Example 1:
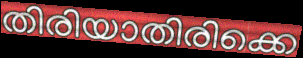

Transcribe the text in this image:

തിരിയാതിരിക്കെ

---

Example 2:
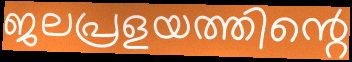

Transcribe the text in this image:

ജലപ്രളയത്തിന്റെ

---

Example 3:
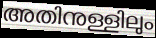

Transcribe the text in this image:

അതിനുള്ളിലും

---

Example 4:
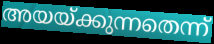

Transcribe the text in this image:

അയയ്ക്കുന്നതെന്ന്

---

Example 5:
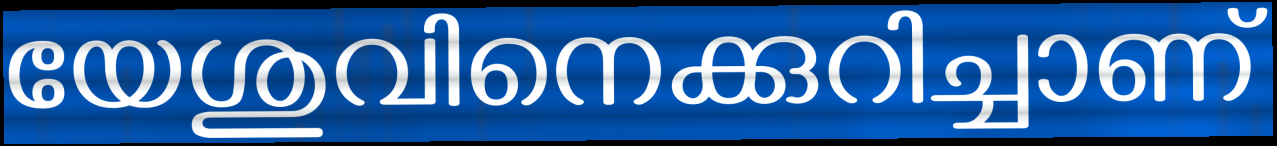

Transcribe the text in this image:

യേശുവിനെക്കുറിച്ചാണ്